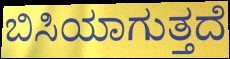
ಬಿಸಿಯಾಗುತ್ತದೆ